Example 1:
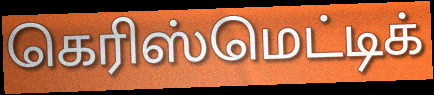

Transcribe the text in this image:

கெரிஸ்மெட்டிக்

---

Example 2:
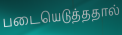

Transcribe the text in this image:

படையெடுத்ததால்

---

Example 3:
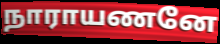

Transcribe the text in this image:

நாராயணனே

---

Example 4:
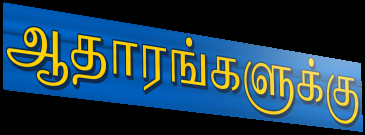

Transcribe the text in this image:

ஆதாரங்களுக்கு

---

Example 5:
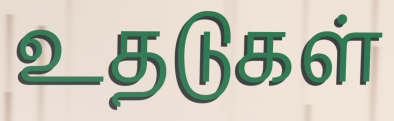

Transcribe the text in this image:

உதடுகள்